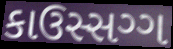
કાઉસ્સગ્ગ